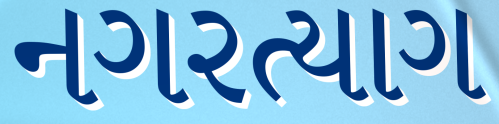
નગરત્યાગ